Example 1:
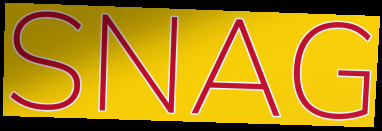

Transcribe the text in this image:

SNAG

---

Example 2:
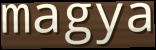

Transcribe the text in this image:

magya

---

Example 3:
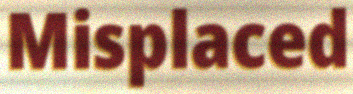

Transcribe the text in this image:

Misplaced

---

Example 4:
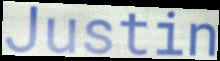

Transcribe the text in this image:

Justin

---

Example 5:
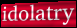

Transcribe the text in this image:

idolatry